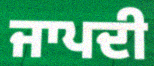
ਜਾਪਦੀ